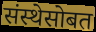
संस्थेसोबत